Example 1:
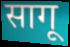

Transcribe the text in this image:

सागू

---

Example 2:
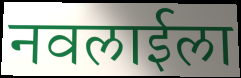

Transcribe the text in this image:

नवलाईला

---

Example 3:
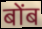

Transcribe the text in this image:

बोंब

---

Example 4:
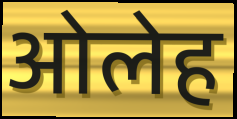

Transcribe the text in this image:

ओलेह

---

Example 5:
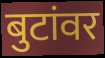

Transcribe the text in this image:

बुटांवर